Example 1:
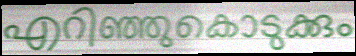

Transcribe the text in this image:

എറിഞ്ഞുകൊടുക്കും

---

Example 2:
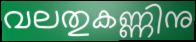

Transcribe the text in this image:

വലതുകണ്ണിനു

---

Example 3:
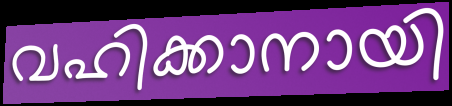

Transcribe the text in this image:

വഹിക്കാനായി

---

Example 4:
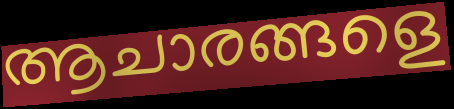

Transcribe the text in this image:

ആചാരങ്ങളെ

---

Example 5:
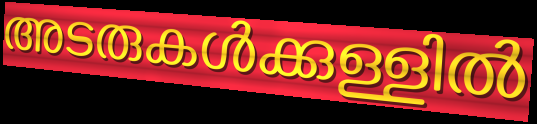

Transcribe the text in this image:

അടരുകൾക്കുള്ളിൽ